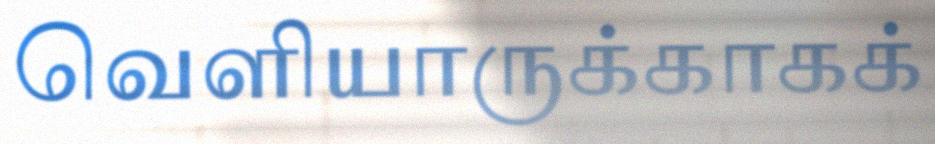
வெளியாருக்காகக்